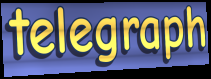
telegraph